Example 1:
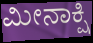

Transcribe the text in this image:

ಮೀನಾಕ್ಷಿ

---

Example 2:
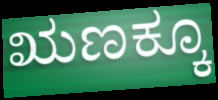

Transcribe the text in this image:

ಋಣಕ್ಕೂ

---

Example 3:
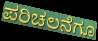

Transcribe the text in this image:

ಪರಿಚಲನೆಗೂ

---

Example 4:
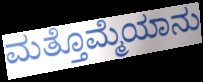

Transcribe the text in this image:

ಮತ್ತೊಮ್ಮೆಯಾನು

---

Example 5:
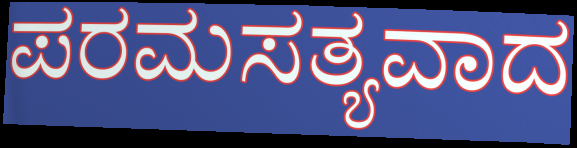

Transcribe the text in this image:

ಪರಮಸತ್ಯವಾದ